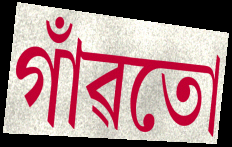
গাঁৱতো